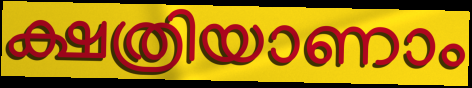
ക്ഷത്രിയാണാം